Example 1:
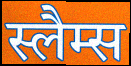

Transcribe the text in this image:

स्लैम्स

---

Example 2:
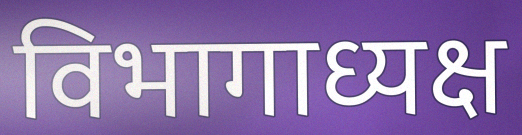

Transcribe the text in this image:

विभागाध्यक्ष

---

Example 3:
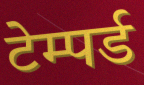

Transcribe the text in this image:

टेम्पर्ड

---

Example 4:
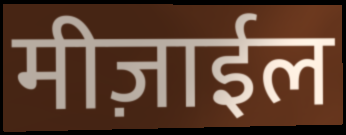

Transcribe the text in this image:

मीज़ाईल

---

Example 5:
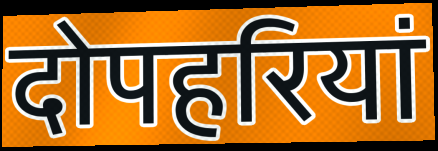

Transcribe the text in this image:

दोपहरियां